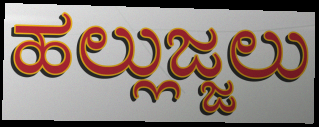
ಹಲ್ಲುಜ್ಜಲು